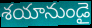
శయానుండై